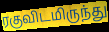
ரகுவிடமிருந்து